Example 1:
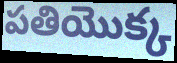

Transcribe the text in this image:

పతియొక్క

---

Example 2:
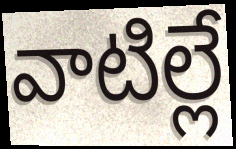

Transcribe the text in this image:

వాటిల్లే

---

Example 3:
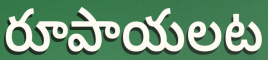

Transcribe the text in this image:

రూపాయలట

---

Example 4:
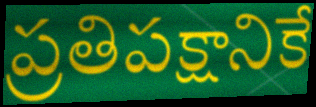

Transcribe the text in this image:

ప్రతిపక్షానికే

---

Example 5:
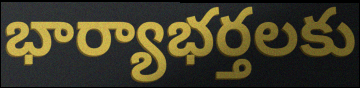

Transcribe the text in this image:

భార్యాభర్తలకు